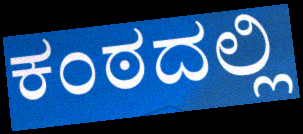
ಕಂಠದಲ್ಲಿ